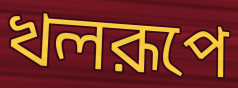
খলরূপে